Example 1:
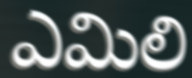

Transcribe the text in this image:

ఎమిలి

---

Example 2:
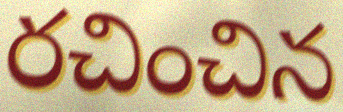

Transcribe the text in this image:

రచించిన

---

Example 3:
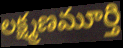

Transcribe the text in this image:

లక్ష్మణమూర్తి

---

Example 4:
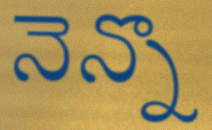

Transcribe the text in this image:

నెన్నొ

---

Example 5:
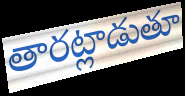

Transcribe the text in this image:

తారట్లాడుతూ